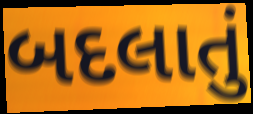
બદલાતું